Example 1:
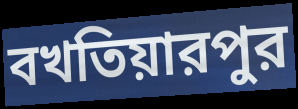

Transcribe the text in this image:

বখতিয়ারপুর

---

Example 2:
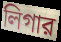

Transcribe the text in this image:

লিগার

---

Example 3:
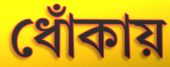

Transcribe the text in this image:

ধোঁকায়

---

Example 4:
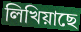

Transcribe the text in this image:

লিখিয়াছে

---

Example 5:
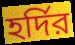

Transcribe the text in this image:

হর্দির